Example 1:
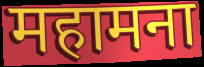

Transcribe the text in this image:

महामना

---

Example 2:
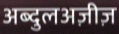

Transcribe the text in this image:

अब्दुलअज़ीज़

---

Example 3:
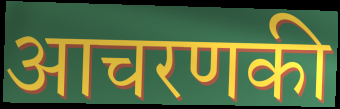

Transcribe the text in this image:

आचरणकी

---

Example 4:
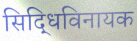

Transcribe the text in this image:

सिद्धिविनायक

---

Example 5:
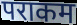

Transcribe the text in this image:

पराकम